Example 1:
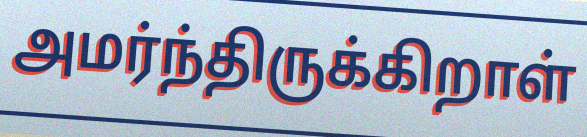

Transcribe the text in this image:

அமர்ந்திருக்கிறாள்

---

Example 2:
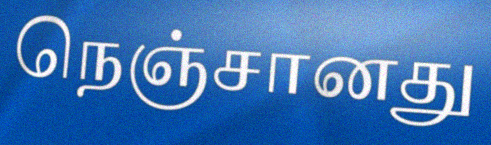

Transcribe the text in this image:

நெஞ்சானது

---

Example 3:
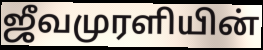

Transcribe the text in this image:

ஜீவமுரளியின்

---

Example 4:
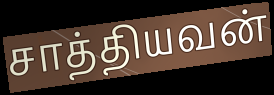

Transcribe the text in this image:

சாத்தியவன்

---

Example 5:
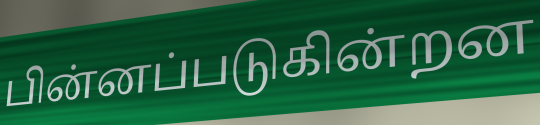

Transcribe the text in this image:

பின்னப்படுகின்றன